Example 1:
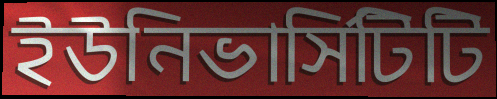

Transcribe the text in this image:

ইউনিভার্সিটিটি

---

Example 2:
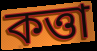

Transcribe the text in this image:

কত্তা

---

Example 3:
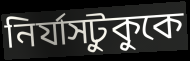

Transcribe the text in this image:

নির্যাসটুকুকে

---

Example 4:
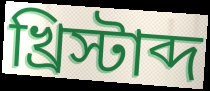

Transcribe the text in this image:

খ্রিস্টাব্দ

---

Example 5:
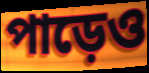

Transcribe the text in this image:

পাড়েও